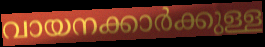
വായനക്കാർക്കുള്ള